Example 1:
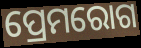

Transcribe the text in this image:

ପ୍ରେମରୋଗ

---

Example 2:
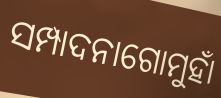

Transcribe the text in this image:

ସମ୍ପାଦନାଗୋମୁହାଁ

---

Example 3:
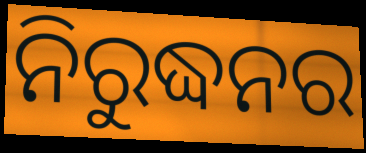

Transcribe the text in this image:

ନିରୁଦ୍ଧନର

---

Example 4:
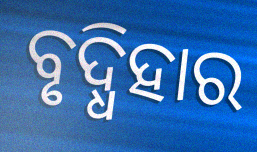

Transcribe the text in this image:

ବୃଦ୍ଧିହାର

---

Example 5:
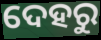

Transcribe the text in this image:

ଦେହରୁ